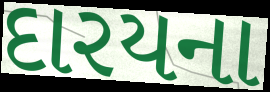
દારયના